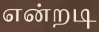
என்றடி